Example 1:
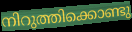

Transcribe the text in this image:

നിറുത്തിക്കൊണ്ടു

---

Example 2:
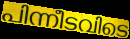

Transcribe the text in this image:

പിന്നീടവിടെ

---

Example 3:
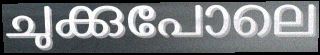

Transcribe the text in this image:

ചുക്കുപോലെ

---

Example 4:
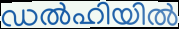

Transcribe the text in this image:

ഡൽഹിയിൽ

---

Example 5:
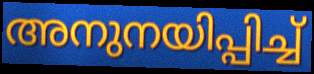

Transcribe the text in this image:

അനുനയിപ്പിച്ച്